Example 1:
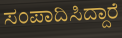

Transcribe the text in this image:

ಸಂಪಾದಿಸಿದ್ದಾರೆ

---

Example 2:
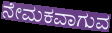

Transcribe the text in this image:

ನೇಮಕವಾಗುವ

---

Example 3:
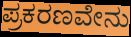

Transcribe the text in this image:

ಪ್ರಕರಣವೇನು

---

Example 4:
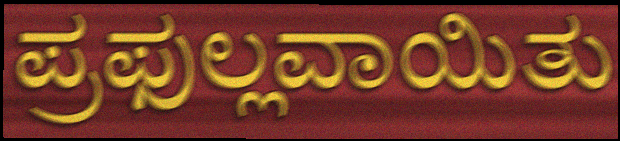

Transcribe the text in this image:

ಪ್ರಫುಲ್ಲವಾಯಿತು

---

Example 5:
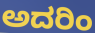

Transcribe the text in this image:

ಅದರಿಂ